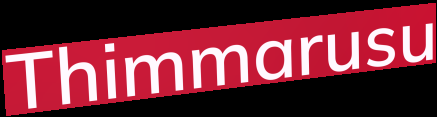
Thimmarusu